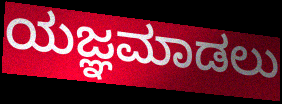
ಯಜ್ಞಮಾಡಲು